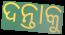
ଦନ୍ତାକୁ